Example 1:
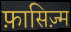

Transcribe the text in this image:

फ़ासिज़्म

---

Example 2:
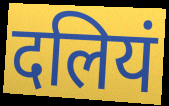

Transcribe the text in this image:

दलियं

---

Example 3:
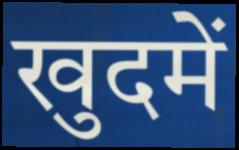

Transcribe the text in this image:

खुदमें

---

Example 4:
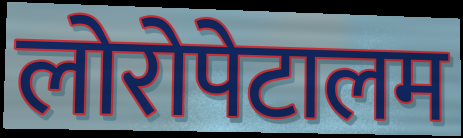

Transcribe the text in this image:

लोरोपेटालम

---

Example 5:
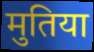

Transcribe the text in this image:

मुतिया